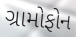
ગ્રામોફોન